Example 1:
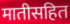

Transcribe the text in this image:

मातीसहित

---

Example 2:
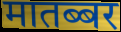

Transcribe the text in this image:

मातब्बर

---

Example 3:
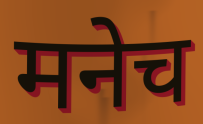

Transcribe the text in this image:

मनेच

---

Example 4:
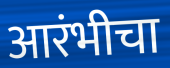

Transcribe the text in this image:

आरंभीचा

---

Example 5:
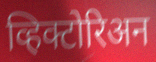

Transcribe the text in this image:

व्हिक्टोरिअन